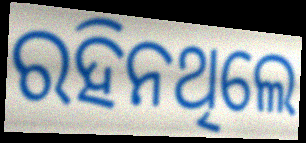
ରହିନଥିଲେ